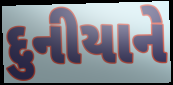
દુનીયાને